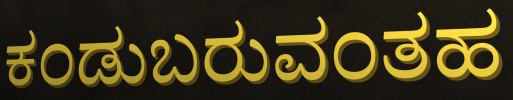
ಕಂಡುಬರುವಂತಹ